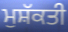
ਮੁਸ਼ੱਕਤੀ